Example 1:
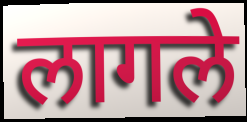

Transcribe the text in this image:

लागले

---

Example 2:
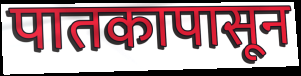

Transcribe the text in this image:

पातकापासून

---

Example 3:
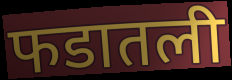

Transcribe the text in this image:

फडातली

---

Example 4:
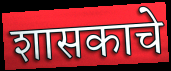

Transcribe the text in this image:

शासकाचे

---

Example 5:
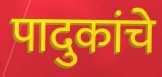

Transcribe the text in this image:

पादुकांचे